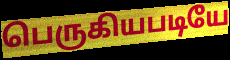
பெருகியபடியே